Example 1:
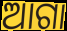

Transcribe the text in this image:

ଆଗା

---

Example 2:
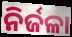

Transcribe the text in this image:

ନିର୍ଜଳା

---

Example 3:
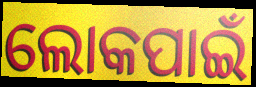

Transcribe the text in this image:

ଲୋକପାଇଁ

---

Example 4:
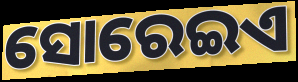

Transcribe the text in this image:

ସୋରେଇଏ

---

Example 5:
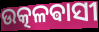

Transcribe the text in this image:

ଉତ୍କଳଵାସୀ